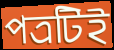
পত্রটিই